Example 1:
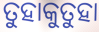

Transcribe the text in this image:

ତୁହାକୁତୁହା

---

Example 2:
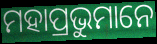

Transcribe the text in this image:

ମହାପ୍ରଭୁମାନେ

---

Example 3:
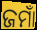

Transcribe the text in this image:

ଜମାଁ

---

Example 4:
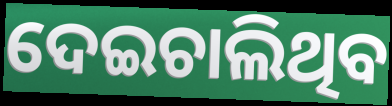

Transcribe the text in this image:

ଦେଇଚାଲିଥିବ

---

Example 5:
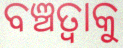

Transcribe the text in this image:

ବଞ୍ଚତ୍ବାକୁ